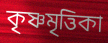
কৃষ্ণমৃত্তিকা